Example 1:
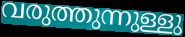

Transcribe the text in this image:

വരുത്തുന്നുള്ളു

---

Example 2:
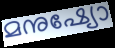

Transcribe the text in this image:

മനുഷ്യോ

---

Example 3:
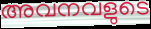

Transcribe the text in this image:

അവനവളുടെ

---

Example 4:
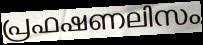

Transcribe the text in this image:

പ്രഫഷണലിസം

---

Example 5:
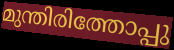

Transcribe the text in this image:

മുന്തിരിത്തോപ്പു